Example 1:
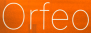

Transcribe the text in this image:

Orfeo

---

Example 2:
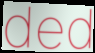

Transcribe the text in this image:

ded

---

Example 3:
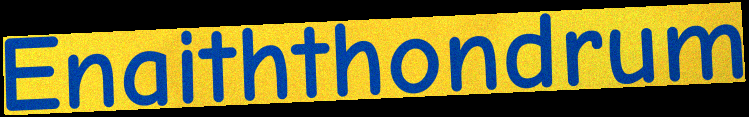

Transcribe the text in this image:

Enaiththondrum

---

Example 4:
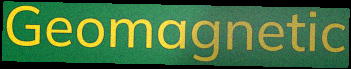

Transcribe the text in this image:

Geomagnetic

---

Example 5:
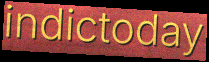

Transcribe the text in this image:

indictoday